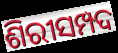
ଶିରୀସମ୍ପଦ